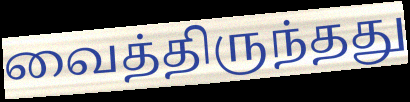
வைத்திருந்தது